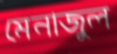
মেনাজুল